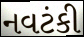
નવટંકી